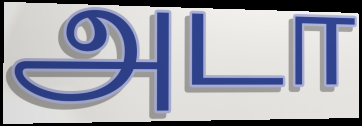
அடா